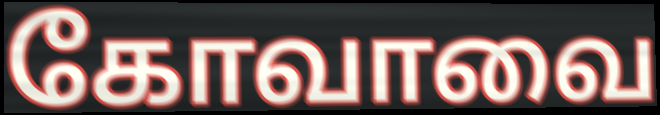
கோவாவை